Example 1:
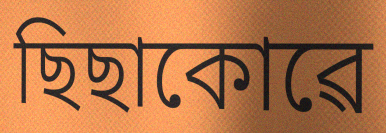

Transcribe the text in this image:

ছিছাকোৱে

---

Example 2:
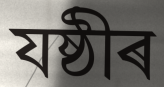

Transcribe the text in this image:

যষ্ঠীৰ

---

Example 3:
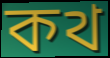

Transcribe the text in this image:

কথ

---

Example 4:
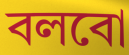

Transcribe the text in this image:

বলবো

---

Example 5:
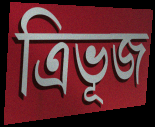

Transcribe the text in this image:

ত্ৰিভূজ